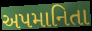
અપમાનિતા